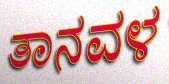
ತಾನವಳ